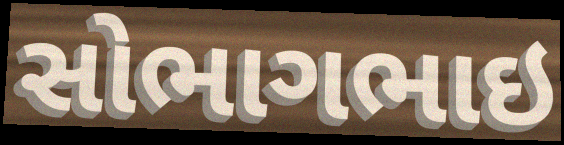
સોભાગભાઇ